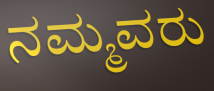
ನಮ್ಮವರು